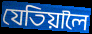
যেতিয়ালৈ